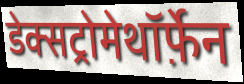
डेक्सट्रोमेथॉर्फ़ेन